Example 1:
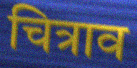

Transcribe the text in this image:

चित्राव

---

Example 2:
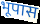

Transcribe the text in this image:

भूपास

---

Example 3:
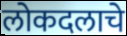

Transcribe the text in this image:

लोकदलाचे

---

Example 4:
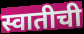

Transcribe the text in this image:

स्वातीची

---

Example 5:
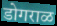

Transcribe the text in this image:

डोगराळ